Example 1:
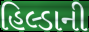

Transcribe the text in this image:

હિલ્ડાની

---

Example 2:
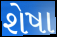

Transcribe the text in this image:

શેષા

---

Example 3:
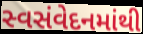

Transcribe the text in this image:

સ્વસંવેદનમાંથી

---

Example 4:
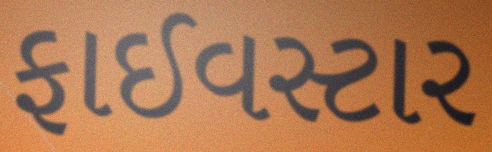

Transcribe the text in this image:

ફાઈવસ્ટાર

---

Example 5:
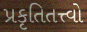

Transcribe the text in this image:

પ્રકૃતિતત્ત્વો